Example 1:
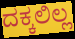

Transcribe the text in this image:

ದಕ್ಕಲಿಲ್ಲ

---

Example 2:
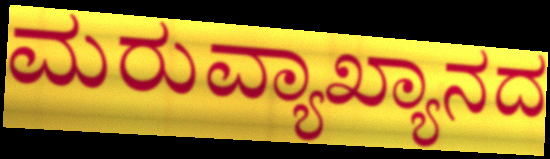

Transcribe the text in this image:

ಮರುವ್ಯಾಖ್ಯಾನದ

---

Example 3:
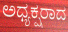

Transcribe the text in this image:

ಅಧ್ಯಕ್ಷರಾದ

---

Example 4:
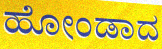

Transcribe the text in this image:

ಹೋಂಡಾದ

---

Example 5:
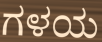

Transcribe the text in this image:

ಗಳಯ